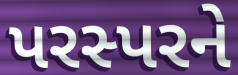
પરસ્પરને